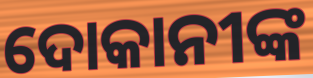
ଦୋକାନୀଙ୍କ